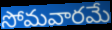
సోమవారమే